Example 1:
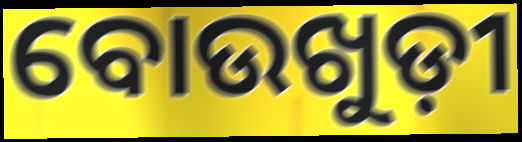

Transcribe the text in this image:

ବୋଉଖୁଡ଼ୀ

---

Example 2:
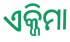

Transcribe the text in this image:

ଏକ୍ଜିମା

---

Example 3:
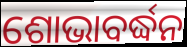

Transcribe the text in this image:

ଶୋଭାବର୍ଦ୍ଧନ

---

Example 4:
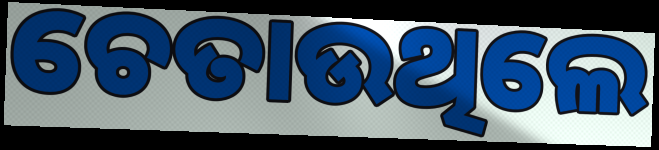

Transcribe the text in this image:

ଚେତାଉଥିଲେ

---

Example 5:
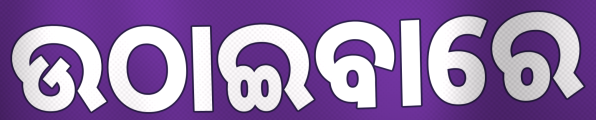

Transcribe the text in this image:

ଉଠାଇବାରେ